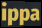
ippa